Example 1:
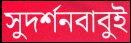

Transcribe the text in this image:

সুদর্শনবাবুই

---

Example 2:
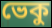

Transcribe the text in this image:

ভেকু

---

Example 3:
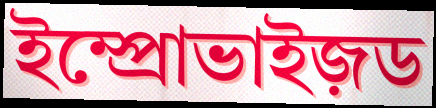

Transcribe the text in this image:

ইম্প্রোভাইজ়ড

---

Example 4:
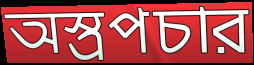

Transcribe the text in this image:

অস্ত্রপচার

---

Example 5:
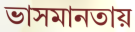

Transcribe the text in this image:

ভাসমানতায়